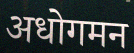
अधोगमन